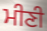
ਮੀਣੀ